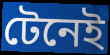
টেনেই